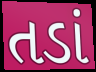
તડાં